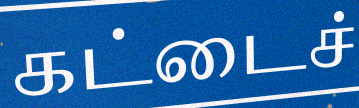
கட்டைச்